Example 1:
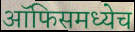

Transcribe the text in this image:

ऑफिसमध्येच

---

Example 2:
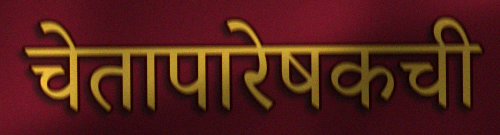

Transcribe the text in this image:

चेतापारेषकची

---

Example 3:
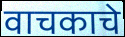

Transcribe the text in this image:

वाचकाचे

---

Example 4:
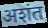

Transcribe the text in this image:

अशंत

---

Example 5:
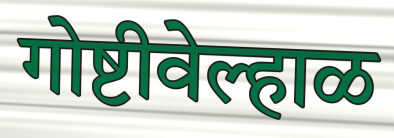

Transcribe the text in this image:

गोष्टीवेल्हाळ